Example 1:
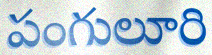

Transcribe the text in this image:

పంగులూరి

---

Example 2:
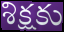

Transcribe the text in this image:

శిక్షకు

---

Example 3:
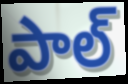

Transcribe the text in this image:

పాల్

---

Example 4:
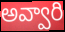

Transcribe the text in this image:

అవ్వారి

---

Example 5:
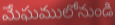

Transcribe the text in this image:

మేఘములోనుండి